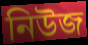
নিউজ